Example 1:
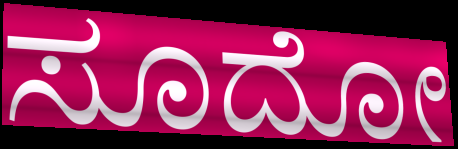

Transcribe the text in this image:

ಸೂದೋ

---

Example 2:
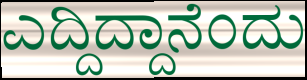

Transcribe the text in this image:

ಎದ್ದಿದ್ದಾನೆಂದು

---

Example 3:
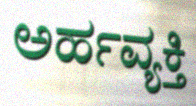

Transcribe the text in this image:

ಅರ್ಹವ್ಯಕ್ತಿ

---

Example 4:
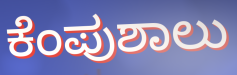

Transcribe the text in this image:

ಕೆಂಪುಶಾಲು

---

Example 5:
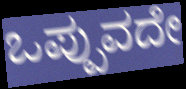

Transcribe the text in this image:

ಒಪ್ಪುವದೇ